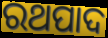
ରଥପାଦ